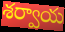
శర్వాయ